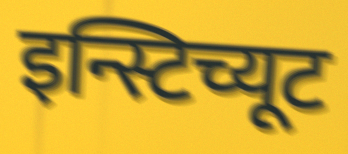
इन्स्टिच्यूट